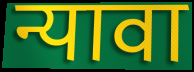
न्यावा